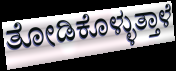
ತೋಡಿಕೊಳ್ಳುತ್ತಾಳೆ